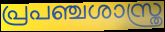
പ്രപഞ്ചശാസ്ത്ര